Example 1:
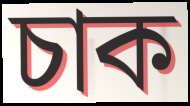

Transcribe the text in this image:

চাক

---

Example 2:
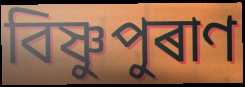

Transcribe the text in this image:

বিষ্ণুপুৰাণ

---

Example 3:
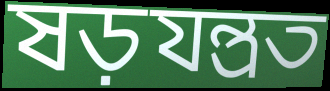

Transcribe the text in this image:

ষড়যন্ত্ৰত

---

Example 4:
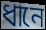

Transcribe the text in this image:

ধানে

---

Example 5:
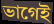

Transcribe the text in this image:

ভাগেই